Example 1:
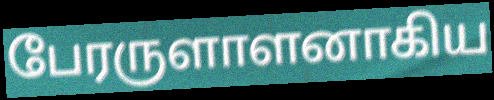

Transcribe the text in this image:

பேரருளாளனாகிய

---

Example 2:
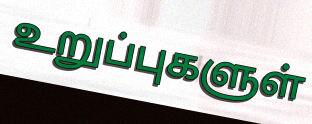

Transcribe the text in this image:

உறுப்புகளுள்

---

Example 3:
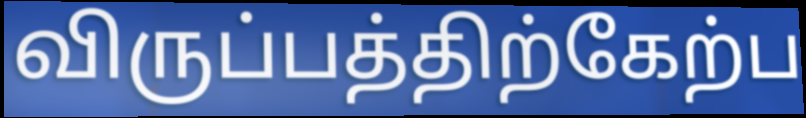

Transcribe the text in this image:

விருப்பத்திற்கேற்ப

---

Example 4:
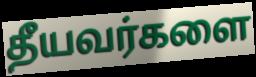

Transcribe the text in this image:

தீயவர்களை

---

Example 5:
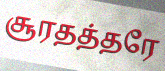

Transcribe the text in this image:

சூரதத்தரே